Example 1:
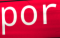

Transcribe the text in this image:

por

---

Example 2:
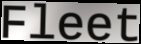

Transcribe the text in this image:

Fleet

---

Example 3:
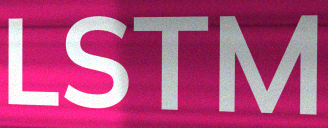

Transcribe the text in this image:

LSTM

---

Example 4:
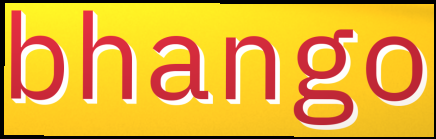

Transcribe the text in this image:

bhango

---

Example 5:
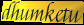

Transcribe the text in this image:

dhumketu